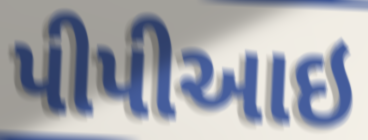
પીપીઆઇ